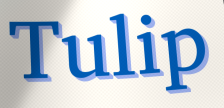
Tulip